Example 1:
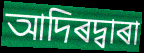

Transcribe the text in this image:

আদিৰদ্বাৰা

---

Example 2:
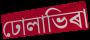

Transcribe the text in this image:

ঢোলাভিৰা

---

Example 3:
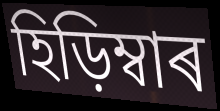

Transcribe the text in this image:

হিড়িম্বাৰ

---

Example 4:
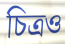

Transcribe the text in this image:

চিত্ৰও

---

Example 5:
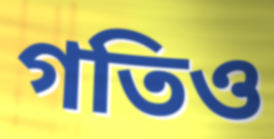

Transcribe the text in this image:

গতিও